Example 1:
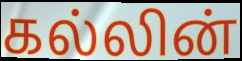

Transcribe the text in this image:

கல்லின்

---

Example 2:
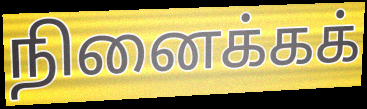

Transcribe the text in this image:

நினைக்கக்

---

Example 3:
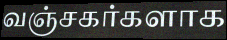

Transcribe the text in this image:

வஞ்சகர்களாக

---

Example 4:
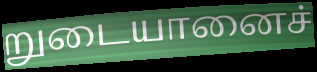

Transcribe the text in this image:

றுடையானைச்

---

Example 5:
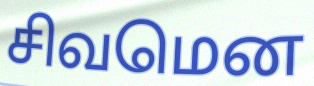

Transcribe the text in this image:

சிவமென